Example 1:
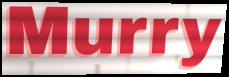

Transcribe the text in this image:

Murry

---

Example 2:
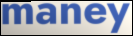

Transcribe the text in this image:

maney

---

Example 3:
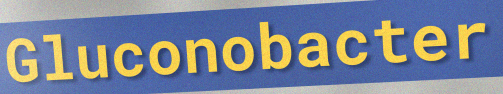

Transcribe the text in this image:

Gluconobacter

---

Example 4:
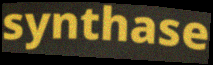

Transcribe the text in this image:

synthase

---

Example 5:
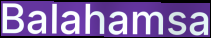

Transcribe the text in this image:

Balahamsa